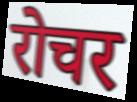
रोचर